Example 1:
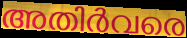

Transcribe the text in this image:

അതിർവരെ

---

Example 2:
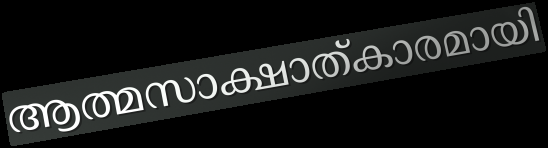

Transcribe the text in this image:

ആത്മസാക്ഷാത്കാരമായി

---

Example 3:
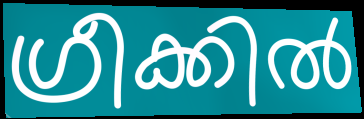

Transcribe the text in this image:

ഗ്രീക്കിൽ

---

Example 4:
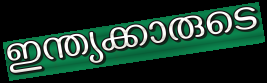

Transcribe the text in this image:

ഇന്ത്യക്കാരുടെ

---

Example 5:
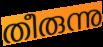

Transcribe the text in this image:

തീരുന്നു